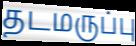
தடமருப்பு